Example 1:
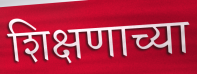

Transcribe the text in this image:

शिक्षणाच्या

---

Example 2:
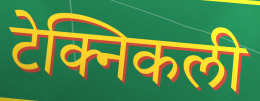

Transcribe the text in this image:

टेक्निकली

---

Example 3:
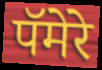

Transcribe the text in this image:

पॅमेरे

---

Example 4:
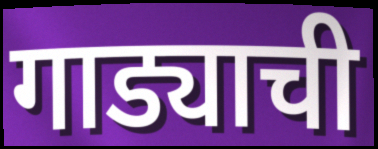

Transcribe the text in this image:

गाड्याची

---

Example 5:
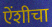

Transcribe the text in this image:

ऐंशीचा